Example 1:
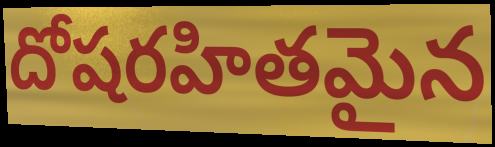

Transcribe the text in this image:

దోషరహితమైన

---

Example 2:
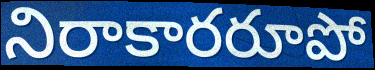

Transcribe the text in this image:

నిరాకారరూపో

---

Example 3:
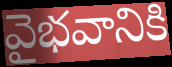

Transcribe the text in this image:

వైభవానికి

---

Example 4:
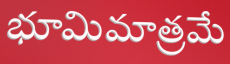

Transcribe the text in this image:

భూమిమాత్రమే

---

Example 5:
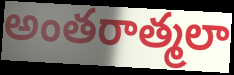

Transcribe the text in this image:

అంతరాత్మలా